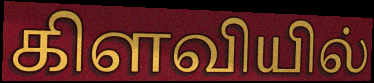
கிளவியில்